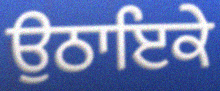
ਉਠਾਇਕੇ